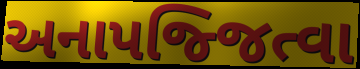
અનાપજ્જિત્વા